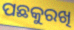
ପଛକୁରଖି